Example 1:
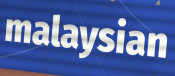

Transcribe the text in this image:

malaysian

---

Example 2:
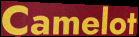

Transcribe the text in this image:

Camelot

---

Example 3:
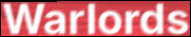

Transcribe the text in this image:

Warlords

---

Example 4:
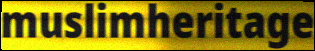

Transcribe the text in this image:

muslimheritage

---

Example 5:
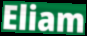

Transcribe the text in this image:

Eliam